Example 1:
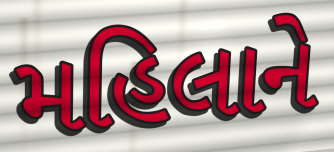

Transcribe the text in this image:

મહિલાને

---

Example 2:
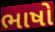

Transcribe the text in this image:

ભાષો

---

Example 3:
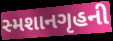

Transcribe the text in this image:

સ્મશાનગૃહની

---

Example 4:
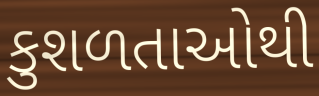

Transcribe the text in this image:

કુશળતાઓથી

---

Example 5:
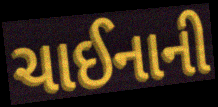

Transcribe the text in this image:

ચાઈનાની